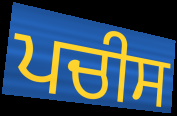
ਪਚੀਸ